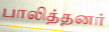
பாலித்தனர்